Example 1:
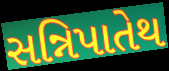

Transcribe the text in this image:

સન્નિપાતેથ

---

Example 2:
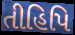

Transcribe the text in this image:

તીહિપિ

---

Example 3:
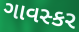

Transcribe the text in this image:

ગાવસ્કર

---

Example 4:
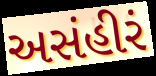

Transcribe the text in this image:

અસંહીરં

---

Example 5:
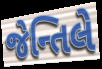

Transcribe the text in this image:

જેન્તિલે